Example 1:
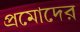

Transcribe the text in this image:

প্রমোদের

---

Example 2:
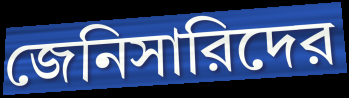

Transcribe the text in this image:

জেনিসারিদের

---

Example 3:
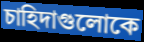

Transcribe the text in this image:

চাহিদাগুলোকে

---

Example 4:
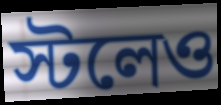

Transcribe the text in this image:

স্টলেও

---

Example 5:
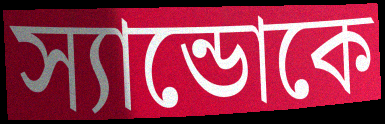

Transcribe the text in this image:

স্যান্ডোকে